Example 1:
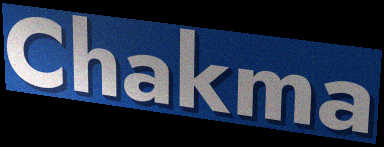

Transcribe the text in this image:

Chakma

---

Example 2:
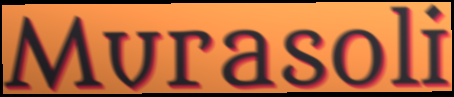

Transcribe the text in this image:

Murasoli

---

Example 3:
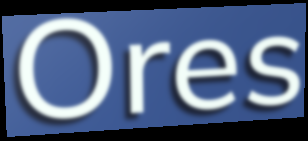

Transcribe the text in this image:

Ores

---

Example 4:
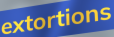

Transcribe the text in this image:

extortions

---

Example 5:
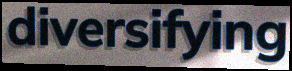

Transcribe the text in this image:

diversifying